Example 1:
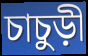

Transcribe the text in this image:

চাচুড়ী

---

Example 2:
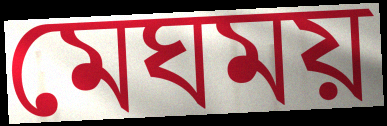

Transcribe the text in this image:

মেঘময়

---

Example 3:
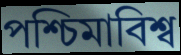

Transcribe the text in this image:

পশ্চিমাবিশ্ব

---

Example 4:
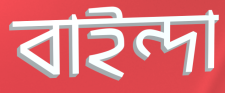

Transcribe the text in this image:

বাইন্দা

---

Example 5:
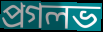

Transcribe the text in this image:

প্রগলভ